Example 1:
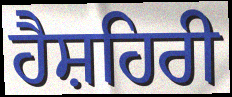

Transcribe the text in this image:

ਹੈਸ਼ਹਿਰੀ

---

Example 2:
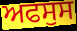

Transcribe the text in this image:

ਅਫਸੁਸ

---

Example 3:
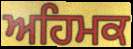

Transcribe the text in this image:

ਅਹਿਮਕ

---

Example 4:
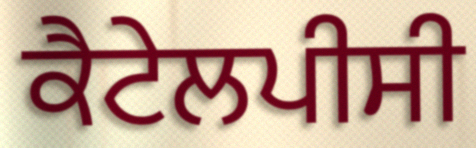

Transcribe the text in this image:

ਕੈਟੇਲਪੀਸੀ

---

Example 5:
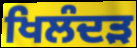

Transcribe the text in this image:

ਖਿਲੰਦੜ